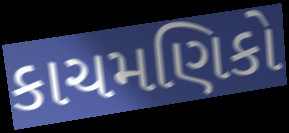
કાચમણિકો